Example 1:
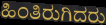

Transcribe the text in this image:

ಹಿಂತಿರುಗಿದರು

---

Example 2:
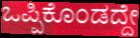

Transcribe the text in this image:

ಒಪ್ಪಿಕೊಂಡದ್ದೇ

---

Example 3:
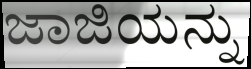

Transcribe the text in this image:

ಜಾಜಿಯನ್ನು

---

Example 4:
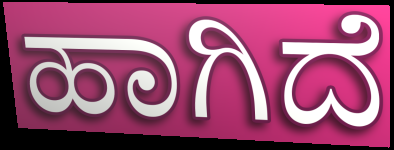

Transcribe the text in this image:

ಹಾಗಿದೆ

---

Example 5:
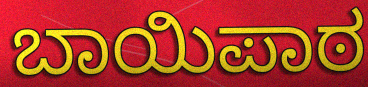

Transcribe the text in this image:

ಬಾಯಿಪಾಠ